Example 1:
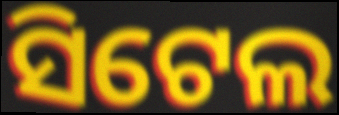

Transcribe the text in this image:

ସିଟେଲ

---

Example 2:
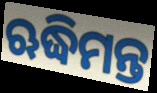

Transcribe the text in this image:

ଋଦ୍ଧିମନ୍ତ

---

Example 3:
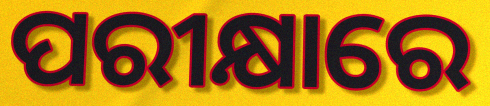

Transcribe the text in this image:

ପରୀକ୍ଷାରେ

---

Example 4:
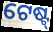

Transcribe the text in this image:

ଟେଷ୍ଟ୍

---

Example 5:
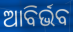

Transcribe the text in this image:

ଆବିର୍ଭବ